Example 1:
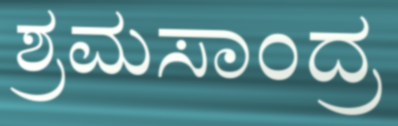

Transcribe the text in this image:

ಶ್ರಮಸಾಂದ್ರ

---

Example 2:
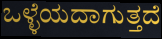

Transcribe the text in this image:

ಒಳ್ಳೆಯದಾಗುತ್ತದೆ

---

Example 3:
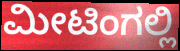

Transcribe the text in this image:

ಮೀಟಿಂಗಲ್ಲಿ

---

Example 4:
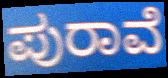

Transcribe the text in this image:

ಪುರಾವೆ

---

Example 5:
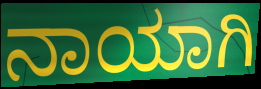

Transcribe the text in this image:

ನಾಯಾಗಿ